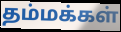
தம்மக்கள்